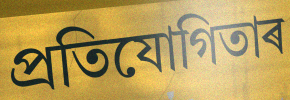
প্ৰতিযোগিতাৰ